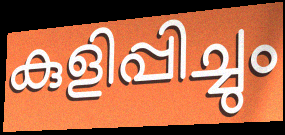
കുളിപ്പിച്ചും